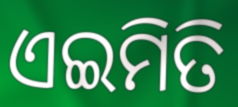
ଏଇମିତି